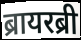
ब्रायरब्री